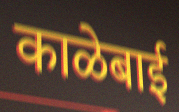
काळेबाई